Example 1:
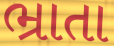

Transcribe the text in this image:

ભ્રાતા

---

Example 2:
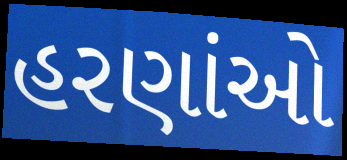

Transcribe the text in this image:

હરણાંઓ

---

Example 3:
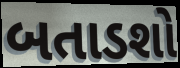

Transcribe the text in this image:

બતાડશો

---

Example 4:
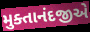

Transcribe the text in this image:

મુક્તાનંદજીએ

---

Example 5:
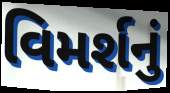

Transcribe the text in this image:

વિમર્શનું